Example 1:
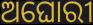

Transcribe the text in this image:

ଅଘୋରୀ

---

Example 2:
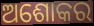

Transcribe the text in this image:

ଅଶୋକର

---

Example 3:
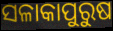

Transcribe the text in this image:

ସଳାକାପୁରୁଷ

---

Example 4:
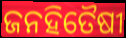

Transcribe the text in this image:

ଜନହିତୈଷୀ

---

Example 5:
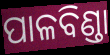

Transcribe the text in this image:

ପାଳବିଣ୍ଡା